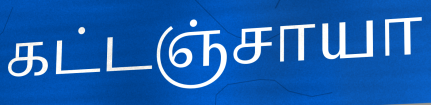
கட்டஞ்சாயா